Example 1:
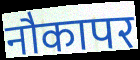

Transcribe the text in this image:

नौकापर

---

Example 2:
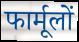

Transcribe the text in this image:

फार्मूलों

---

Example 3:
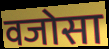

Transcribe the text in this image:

वजोसा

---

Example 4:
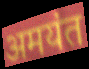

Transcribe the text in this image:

अमयंत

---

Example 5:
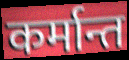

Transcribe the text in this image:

कर्मान्त